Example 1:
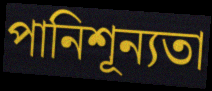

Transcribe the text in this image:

পানিশূন্যতা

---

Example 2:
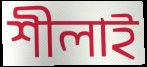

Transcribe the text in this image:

শীলাই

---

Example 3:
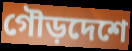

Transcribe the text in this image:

গৌড়দেশে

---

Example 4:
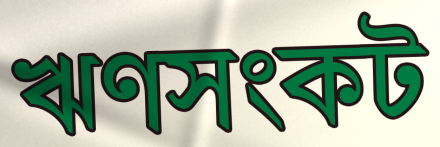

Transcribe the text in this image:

ঋণসংকট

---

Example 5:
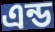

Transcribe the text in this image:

এন্ড